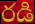
రడి